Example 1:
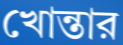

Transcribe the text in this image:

খোন্তার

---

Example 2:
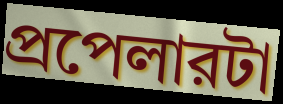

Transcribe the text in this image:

প্রপেলারটা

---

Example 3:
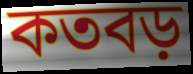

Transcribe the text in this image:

কতবড়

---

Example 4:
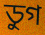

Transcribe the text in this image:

ডুগ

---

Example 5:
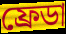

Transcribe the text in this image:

ফ্রেডা